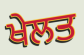
ਖੇਲਤ